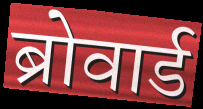
ब्रोवार्ड